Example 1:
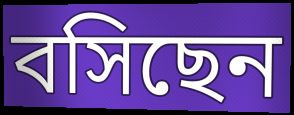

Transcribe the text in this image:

বসিছেন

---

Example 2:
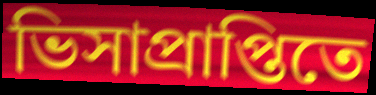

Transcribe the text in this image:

ভিসাপ্রাপ্তিতে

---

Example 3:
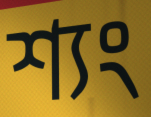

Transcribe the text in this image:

শ্যং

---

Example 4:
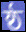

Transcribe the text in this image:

ষ্ঠ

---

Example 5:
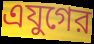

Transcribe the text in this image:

এযুগের